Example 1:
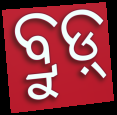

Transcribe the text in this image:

ବ୍ରୁଡ଼୍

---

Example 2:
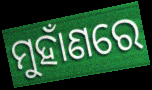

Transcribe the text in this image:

ମୁହାଁଣରେ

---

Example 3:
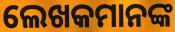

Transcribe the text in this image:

ଲେଖକମାନଙ୍କ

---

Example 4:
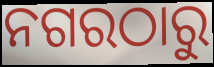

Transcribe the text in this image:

ନଗରଠାରୁ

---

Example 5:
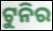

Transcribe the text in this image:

ଟୁନିର